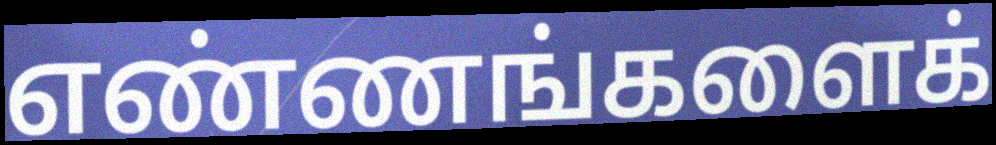
எண்ணங்களைக்